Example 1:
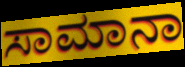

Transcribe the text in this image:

ಸಾಮಾನಾ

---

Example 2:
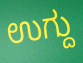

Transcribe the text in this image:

ಉಗ್ದು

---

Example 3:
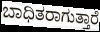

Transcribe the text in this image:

ಬಾಧಿತರಾಗುತ್ತಾರೆ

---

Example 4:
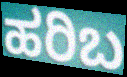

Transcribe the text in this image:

ಹರಿಬ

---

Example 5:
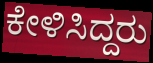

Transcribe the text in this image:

ಕೇಳಿಸಿದ್ದರು